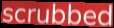
scrubbed